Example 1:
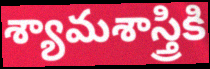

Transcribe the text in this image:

శ్యామశాస్త్రికి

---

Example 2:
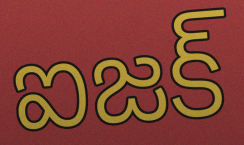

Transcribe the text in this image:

ఐజక్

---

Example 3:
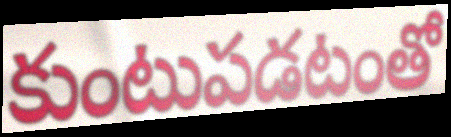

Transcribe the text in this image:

కుంటుపడటంతో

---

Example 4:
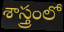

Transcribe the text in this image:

శాస్త్రంలో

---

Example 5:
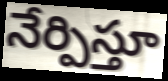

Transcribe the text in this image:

నేర్పిస్తూ